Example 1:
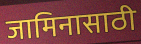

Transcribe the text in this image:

जामिनासाठी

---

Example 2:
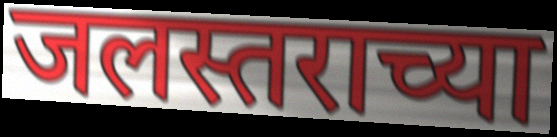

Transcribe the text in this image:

जलस्तराच्या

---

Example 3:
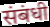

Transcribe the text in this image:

संबंधी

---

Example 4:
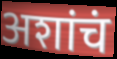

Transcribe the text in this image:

अशांचं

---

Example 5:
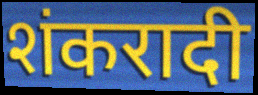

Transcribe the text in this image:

शंकरादी